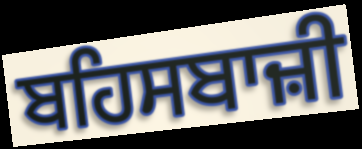
ਬਹਿਸਬਾਜ਼ੀ